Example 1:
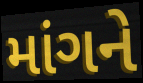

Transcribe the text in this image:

માંગને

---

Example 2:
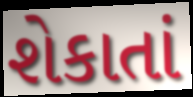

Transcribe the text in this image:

શેકાતાં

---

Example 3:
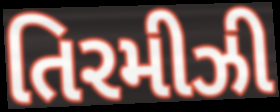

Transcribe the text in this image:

તિરમીઝી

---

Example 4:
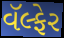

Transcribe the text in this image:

વૅલ્ફેર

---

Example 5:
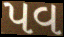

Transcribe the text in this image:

પવ